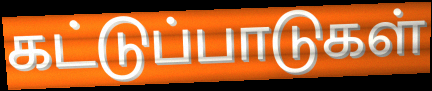
கட்டுப்பாடுகள்